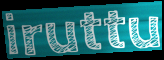
iruttu